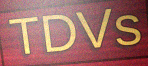
TDVs